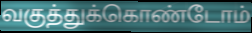
வகுத்துக்கொண்டோம்